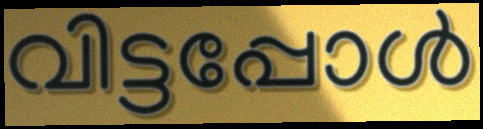
വിട്ടപ്പോൾ